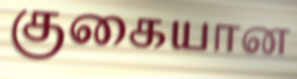
குகையான